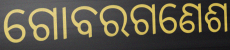
ଗୋବରଗଣେଶ